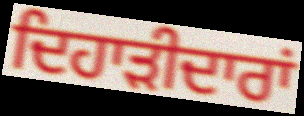
ਦਿਹਾੜੀਦਾਰਾਂ